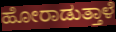
ಹೋರಾಡುತ್ತಾಳೆ